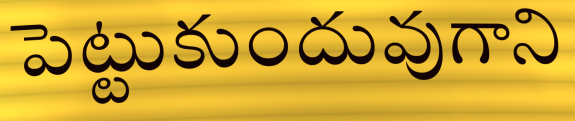
పెట్టుకుందువుగాని